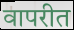
वापरीत